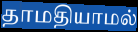
தாமதியாமல்